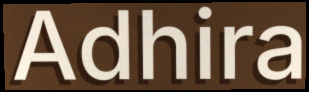
Adhira